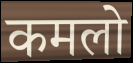
कमलो